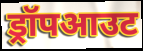
ड्रॉपआउट